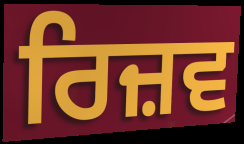
ਰਿਜ਼ਵ